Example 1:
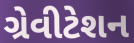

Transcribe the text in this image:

ગ્રેવીટેશન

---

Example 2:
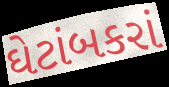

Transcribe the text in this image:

ઘેટાંબકરાં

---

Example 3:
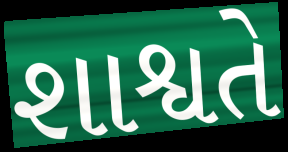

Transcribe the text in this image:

શાશ્વતે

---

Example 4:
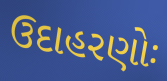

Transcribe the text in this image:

ઉદાહરણોઃ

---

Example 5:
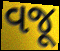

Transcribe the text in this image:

વજૂ